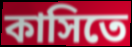
কাসিতে